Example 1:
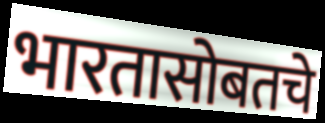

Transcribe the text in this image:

भारतासोबतचे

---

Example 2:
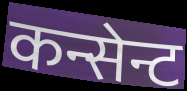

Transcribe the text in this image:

कन्सेन्ट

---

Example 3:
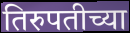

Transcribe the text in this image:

तिरुपतीच्या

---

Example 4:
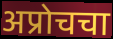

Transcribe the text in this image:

अप्रोचचा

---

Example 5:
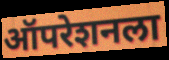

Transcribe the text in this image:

ऑपरेशनला